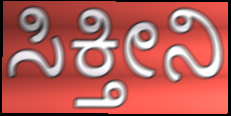
ಸಿಕ್ತೀನಿ